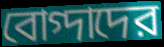
বোগ্দাদের